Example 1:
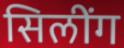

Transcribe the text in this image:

सिलींग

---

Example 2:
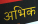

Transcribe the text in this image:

अभिक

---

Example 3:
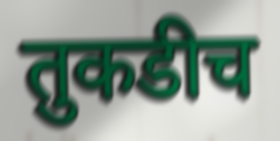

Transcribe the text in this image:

तुकडीच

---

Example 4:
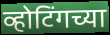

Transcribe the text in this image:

व्होटिंगच्या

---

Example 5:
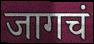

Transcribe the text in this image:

जागचं